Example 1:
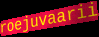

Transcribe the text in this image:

roejuvaarii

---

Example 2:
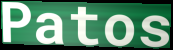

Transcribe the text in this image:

Patos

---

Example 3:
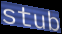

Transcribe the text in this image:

stub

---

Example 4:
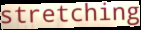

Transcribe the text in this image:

stretching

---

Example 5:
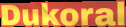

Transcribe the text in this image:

Dukoral